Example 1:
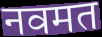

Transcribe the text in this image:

नवमत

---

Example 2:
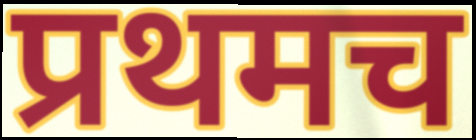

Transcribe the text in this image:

प्रथमच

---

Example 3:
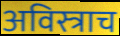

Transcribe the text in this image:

अविस्त्राच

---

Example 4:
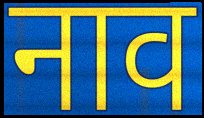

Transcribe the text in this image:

नाव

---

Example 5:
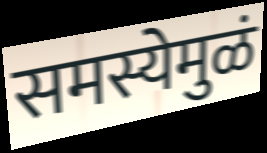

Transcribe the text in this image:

समस्येमुळं